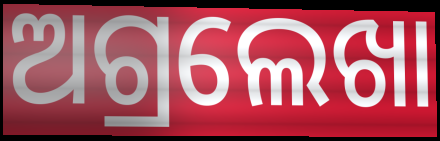
ଅଗ୍ରଲେଖା